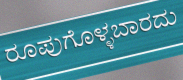
ರೂಪುಗೊಳ್ಳಬಾರದು